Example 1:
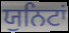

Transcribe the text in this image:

ਯੁਨਿਟਾਂ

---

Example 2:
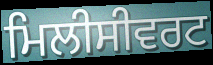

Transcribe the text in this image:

ਮਿਲੀਸੀਵਰਟ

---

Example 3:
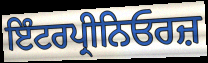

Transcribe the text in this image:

ਇੰਟਰਪ੍ਰੀਨਿਓਰਜ਼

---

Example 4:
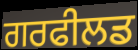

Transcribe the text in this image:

ਗਰਫੀਲਡ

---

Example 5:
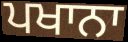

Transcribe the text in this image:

ਪਖਾਨਾ